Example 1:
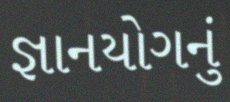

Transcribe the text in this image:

જ્ઞાનયોગનું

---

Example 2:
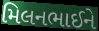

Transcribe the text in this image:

મિલનભાઈને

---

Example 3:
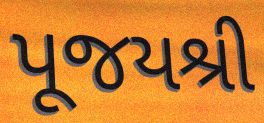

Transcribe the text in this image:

પૂજયશ્રી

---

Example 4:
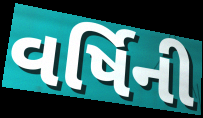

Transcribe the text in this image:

વર્ષિની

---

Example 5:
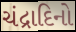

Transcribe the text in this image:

ચંદ્રાદિનો